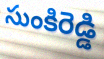
సుంకిరెడ్డి